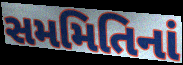
સમમિતિનાં